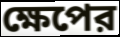
ক্ষেপের